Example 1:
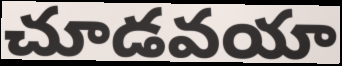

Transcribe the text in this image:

చూడవయా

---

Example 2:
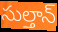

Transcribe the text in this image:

సుల్తాన్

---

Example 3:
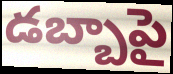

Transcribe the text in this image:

డబ్బాపై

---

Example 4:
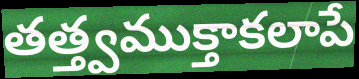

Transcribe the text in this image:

తత్త్వముక్తాకలాపే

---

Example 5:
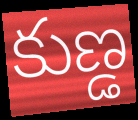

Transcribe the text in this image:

కుణ్డ